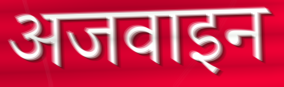
अजवाइन